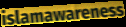
islamawareness